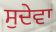
ਸੁਦੇਵਾ